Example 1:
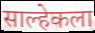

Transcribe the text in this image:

साल्हेकला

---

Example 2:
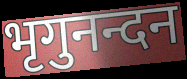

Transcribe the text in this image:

भृगुनन्दन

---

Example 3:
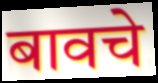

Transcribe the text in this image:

बावचे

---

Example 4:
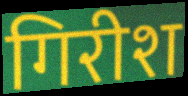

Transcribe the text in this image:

गिरीश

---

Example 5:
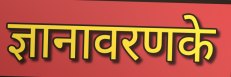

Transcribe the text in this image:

ज्ञानावरणके